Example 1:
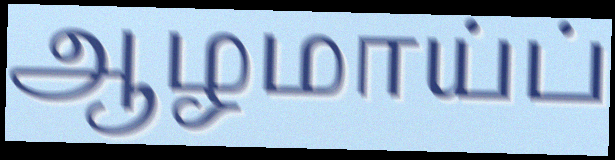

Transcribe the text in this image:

ஆழமாய்ப்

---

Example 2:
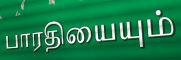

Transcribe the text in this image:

பாரதியையும்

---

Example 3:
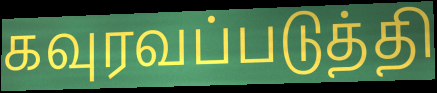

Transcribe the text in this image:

கவுரவப்படுத்தி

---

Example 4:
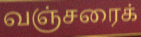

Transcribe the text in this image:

வஞ்சரைக்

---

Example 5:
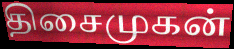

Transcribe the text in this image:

திசைமுகன்